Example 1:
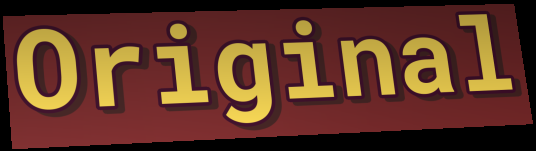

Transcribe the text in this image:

Original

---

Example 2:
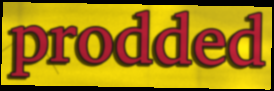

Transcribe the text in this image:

prodded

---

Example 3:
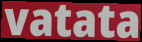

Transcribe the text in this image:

vatata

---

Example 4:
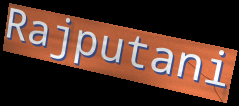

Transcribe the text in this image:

Rajputani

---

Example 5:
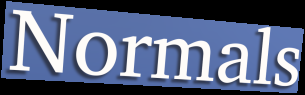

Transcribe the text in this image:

Normals